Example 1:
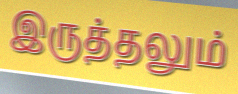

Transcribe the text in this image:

இருத்தலும்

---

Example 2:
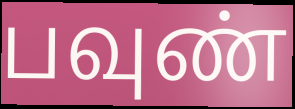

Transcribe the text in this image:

பவுண்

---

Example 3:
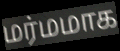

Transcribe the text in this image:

மர்மமாக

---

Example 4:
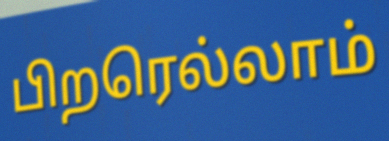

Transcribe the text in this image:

பிறரெல்லாம்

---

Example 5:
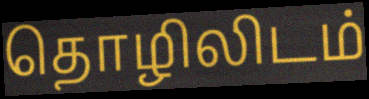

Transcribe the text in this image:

தொழிலிடம்